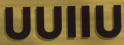
UUIIU